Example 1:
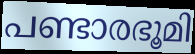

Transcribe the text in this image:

പണ്ടാരഭൂമി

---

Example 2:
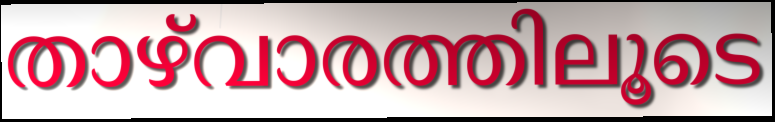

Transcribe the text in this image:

താഴ്‌വാരത്തിലൂടെ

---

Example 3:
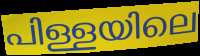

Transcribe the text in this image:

പിള്ളയിലെ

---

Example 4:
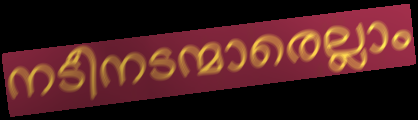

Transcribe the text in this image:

നടീനടന്മാരെല്ലാം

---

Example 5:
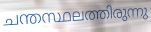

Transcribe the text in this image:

ചന്തസ്ഥലത്തിരുന്നു